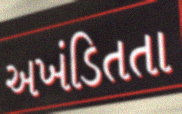
અખંડિતતા